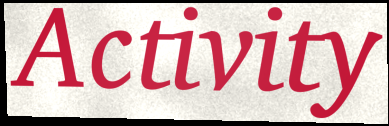
Activity